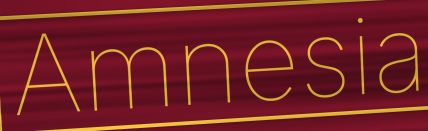
Amnesia